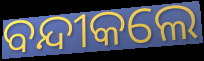
ବନ୍ଦୀକଲେ